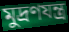
মুদ্ৰণযন্ত্ৰ